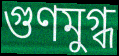
গুণমুগ্ধ